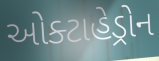
ઓક્ટાહેડ્રોન